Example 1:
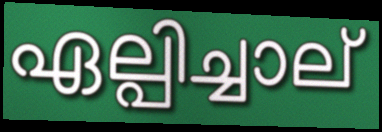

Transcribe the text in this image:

ഏല്പിച്ചാല്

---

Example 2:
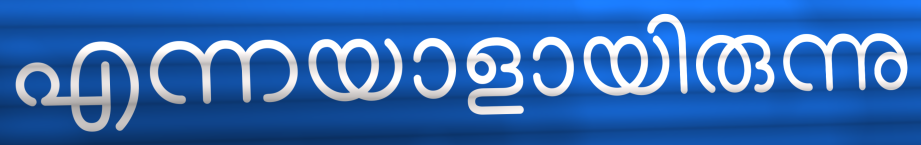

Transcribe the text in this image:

എന്നയാളായിരുന്നു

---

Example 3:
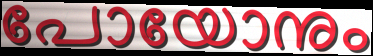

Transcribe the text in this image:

പോയോനും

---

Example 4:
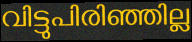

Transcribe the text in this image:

വിട്ടുപിരിഞ്ഞില്ല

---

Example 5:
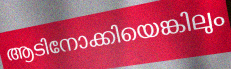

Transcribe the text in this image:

ആടിനോക്കിയെങ്കിലും